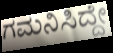
ಗಮನಿಸಿದ್ದೇ